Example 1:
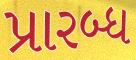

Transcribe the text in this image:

પ્રારબ્ધ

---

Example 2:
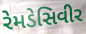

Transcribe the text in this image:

રેમડેસિવીર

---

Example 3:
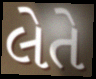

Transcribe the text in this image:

લેતે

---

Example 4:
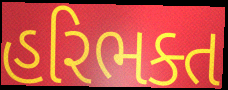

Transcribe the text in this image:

હરિભક્ત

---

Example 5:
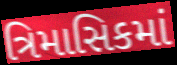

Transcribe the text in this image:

ત્રિમાસિકમાં